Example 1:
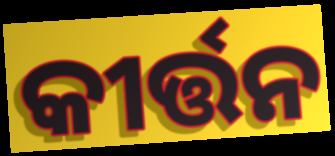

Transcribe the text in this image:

କୀର୍ତ୍ତନ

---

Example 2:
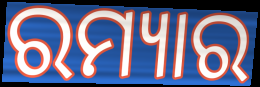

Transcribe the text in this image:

ରମ୍ୟାର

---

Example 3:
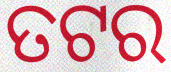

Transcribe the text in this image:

ତଟର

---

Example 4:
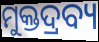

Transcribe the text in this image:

ମୁକ୍ତଦ୍ରବ୍ୟ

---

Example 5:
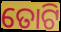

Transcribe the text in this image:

ତୋଟି